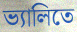
ভ্যালিতে